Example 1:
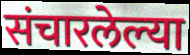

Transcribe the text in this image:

संचारलेल्या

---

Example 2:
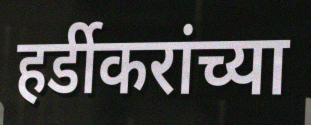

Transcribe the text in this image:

हर्डीकरांच्या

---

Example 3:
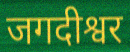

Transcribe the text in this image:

जगदीश्वर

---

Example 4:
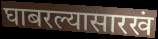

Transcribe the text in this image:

घाबरल्यासारखं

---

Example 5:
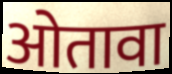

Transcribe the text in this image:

ओतावा